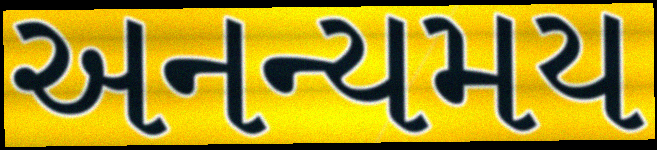
અનન્યમય